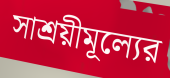
সাশ্রয়ীমূল্যের